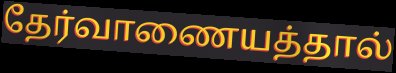
தேர்வாணையத்தால்